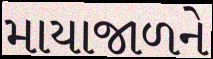
માયાજાળને